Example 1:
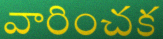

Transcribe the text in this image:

వారించక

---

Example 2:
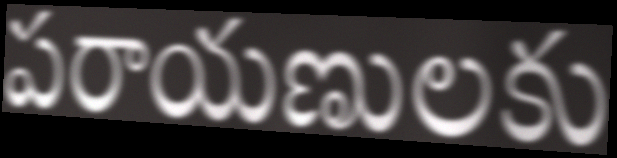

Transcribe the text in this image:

పరాయణులకు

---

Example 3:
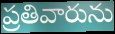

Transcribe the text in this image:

ప్రతివారును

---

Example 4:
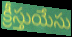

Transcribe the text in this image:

క్రీస్తుయేసు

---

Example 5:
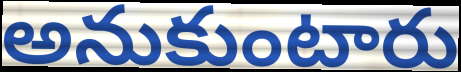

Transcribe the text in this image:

అనుకుంటారు